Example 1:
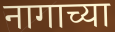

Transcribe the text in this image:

नागाच्या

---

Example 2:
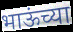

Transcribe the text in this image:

भाऊंच्या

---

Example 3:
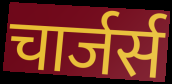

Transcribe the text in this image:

चार्जर्स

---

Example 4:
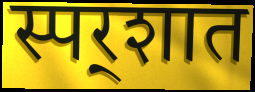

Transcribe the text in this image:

स्पर्शात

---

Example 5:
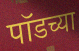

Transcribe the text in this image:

पॉडच्या